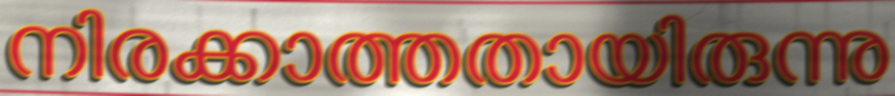
നിരക്കാത്തതായിരുന്നു